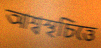
আশ্বস্থচিত্তে